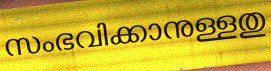
സംഭവിക്കാനുള്ളതു